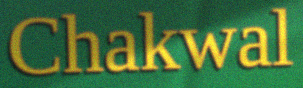
Chakwal